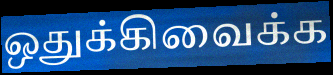
ஒதுக்கிவைக்க